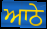
ਆਠੇ